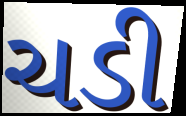
ચડી